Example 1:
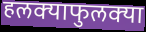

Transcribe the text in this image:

हलक्याफुलक्या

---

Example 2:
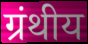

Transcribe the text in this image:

ग्रंथीय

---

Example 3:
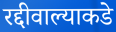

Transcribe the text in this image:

रद्दीवाल्याकडे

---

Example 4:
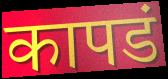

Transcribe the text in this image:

कापडं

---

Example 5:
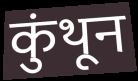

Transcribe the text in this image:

कुंथून